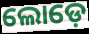
ଲୋଡ଼େ